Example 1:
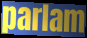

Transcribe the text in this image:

parlam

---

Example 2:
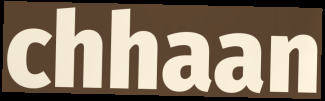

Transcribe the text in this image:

chhaan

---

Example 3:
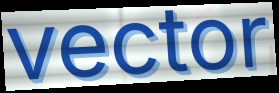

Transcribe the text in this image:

vector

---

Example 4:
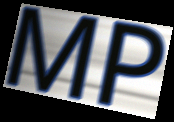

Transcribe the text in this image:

MP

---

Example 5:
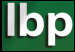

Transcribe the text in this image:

lbp